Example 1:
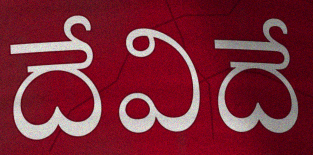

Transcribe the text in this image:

దేవిదే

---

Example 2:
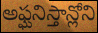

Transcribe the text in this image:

అఫ్ఘనిస్తాన్లోని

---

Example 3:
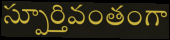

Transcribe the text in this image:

స్పూర్తివంతంగా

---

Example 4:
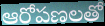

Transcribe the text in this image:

ఆరోపణలతో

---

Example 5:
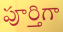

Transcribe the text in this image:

పూర్తిగా